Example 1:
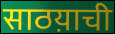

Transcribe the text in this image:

साठय़ाची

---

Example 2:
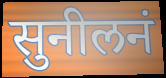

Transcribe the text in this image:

सुनीलनं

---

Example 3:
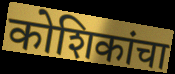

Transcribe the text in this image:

कोशिकांचा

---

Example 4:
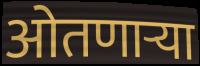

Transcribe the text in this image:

ओतणाऱ्या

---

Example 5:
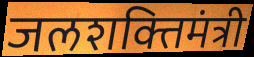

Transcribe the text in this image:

जलशक्तिमंत्री